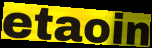
etaoin